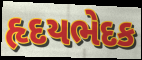
હૃદયભેદક